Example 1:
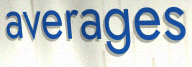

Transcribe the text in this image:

averages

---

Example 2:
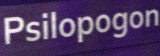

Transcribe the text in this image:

Psilopogon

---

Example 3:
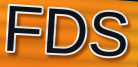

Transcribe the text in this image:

FDS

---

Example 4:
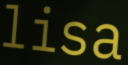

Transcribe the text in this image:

lisa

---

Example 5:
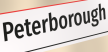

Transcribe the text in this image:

Peterborough